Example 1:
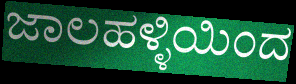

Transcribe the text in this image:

ಜಾಲಹಳ್ಳಿಯಿಂದ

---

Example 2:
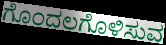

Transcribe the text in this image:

ಗೊಂದಲಗೊಳಿಸುವ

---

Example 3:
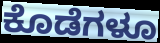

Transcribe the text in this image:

ಕೊಡೆಗಳೂ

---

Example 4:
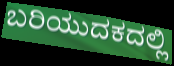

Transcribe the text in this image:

ಬರಿಯುದಕದಲ್ಲಿ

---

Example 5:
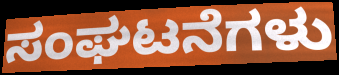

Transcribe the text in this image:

ಸಂಘಟನೆಗಳು